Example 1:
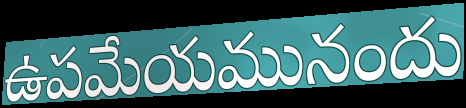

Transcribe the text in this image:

ఉపమేయమునందు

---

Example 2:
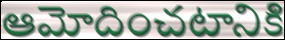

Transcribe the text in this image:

ఆమోదించటానికి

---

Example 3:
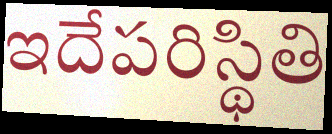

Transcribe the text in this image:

ఇదేపరిస్థితి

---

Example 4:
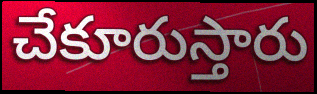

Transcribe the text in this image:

చేకూరుస్తారు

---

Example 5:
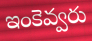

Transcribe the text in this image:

ఇంకెవ్వరు